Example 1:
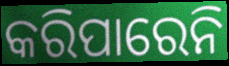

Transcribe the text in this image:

କରିପାରେନି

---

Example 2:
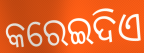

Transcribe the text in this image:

କରେଇଦିଏ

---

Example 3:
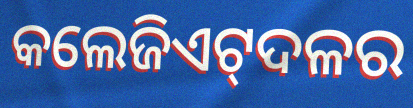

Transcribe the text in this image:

କଲେଜିଏଟ୍‍ଦଳର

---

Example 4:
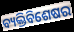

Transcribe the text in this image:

ବ୍ୟକ୍ତିବିଶେଷର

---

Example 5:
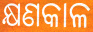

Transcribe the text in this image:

କ୍ଷଣକାଳ